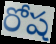
రోష